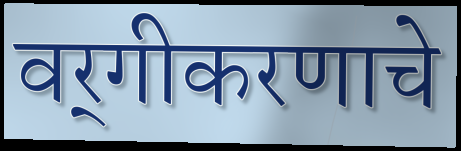
वर्गीकरणाचे